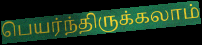
பெயர்ந்திருக்கலாம்